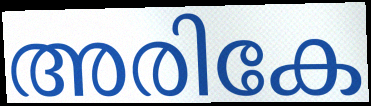
അരികേ